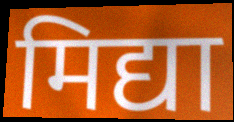
मिद्या